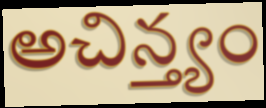
అచిన్త్యం